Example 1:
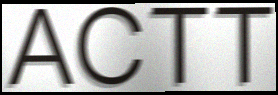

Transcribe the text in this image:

ACTT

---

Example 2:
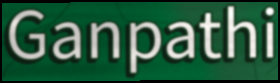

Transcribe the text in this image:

Ganpathi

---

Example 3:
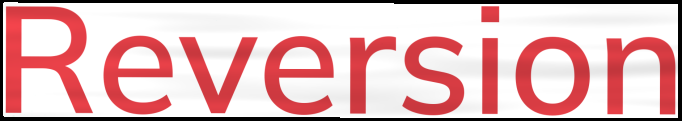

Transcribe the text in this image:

Reversion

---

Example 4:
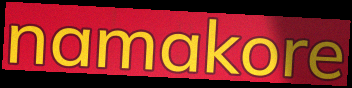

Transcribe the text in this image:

namakore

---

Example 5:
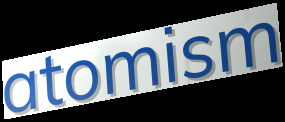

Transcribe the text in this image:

atomism